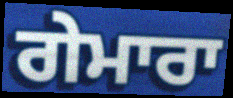
ਗੇਮਾਰਾ